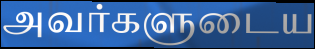
அவர்களுடைய